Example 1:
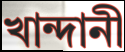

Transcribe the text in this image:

খান্দানী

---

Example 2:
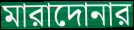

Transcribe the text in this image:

মারাদোনার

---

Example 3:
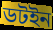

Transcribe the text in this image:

ডটইন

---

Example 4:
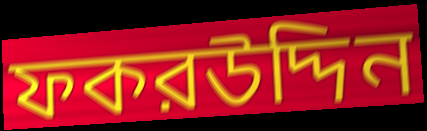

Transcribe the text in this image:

ফকরউদ্দিন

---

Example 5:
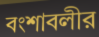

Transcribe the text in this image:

বংশাবলীর